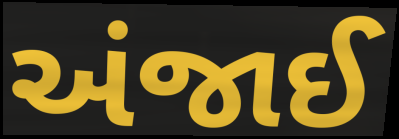
અંજાઈ